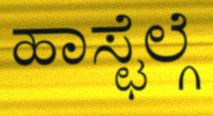
ಹಾಸ್ಟೆಲ್ಗೆ